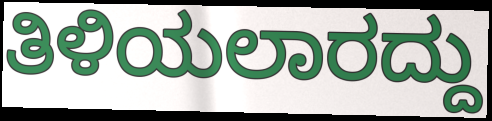
ತಿಳಿಯಲಾರದ್ದು